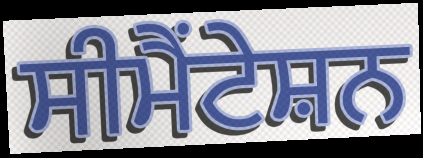
ਸੀਮੈਂਟੇਸ਼ਨ